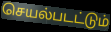
செயல்படட்டும்